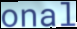
onal